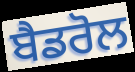
ਬੈਡਰੋਲ